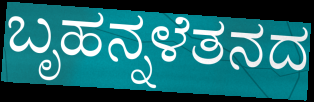
ಬೃಹನ್ನಳೆತನದ